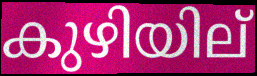
കുഴിയില്